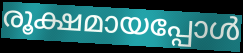
രൂക്ഷമായപ്പോൾ